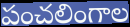
పంచలింగాల